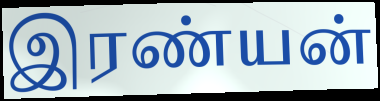
இரண்யன்